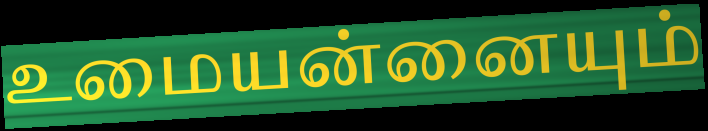
உமையன்னையும்